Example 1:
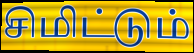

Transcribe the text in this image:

சிமிட்டும்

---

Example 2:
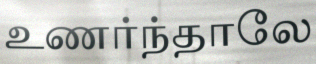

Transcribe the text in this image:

உணர்ந்தாலே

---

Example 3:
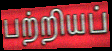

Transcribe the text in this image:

பற்றியப்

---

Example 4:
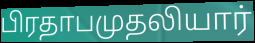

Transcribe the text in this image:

பிரதாபமுதலியார்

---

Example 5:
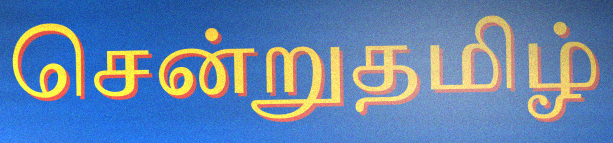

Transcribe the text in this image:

சென்றுதமிழ்